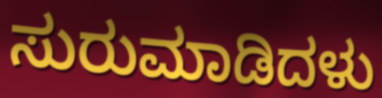
ಸುರುಮಾಡಿದಳು